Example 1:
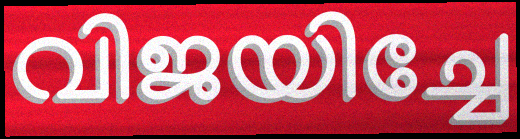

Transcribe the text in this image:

വിജയിച്ചേ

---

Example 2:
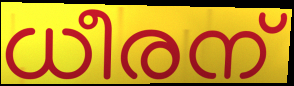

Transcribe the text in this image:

ധീരന്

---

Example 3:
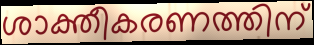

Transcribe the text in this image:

ശാക്തീകരണത്തിന്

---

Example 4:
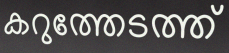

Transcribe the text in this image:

കറുത്തേടത്ത്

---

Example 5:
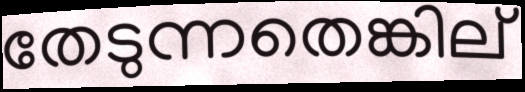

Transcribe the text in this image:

തേടുന്നതെങ്കില്